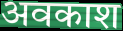
अवकाश